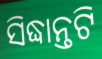
ସିଦ୍ଧାନ୍ତଟି